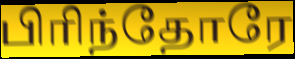
பிரிந்தோரே